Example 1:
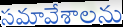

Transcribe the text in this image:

సమావేశాలను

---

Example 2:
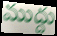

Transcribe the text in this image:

ముద్దు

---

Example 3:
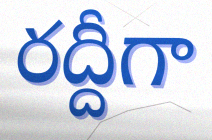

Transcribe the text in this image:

రద్దీగా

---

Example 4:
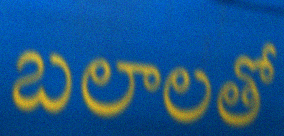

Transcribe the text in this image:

బలాలతో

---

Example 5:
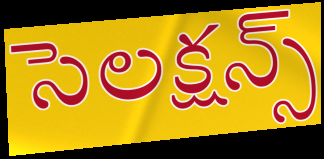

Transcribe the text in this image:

సెలక్షన్స్